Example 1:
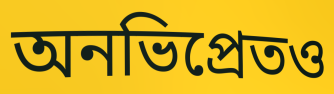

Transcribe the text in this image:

অনভিপ্রেতও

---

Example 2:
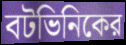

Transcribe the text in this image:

বটভিনিকের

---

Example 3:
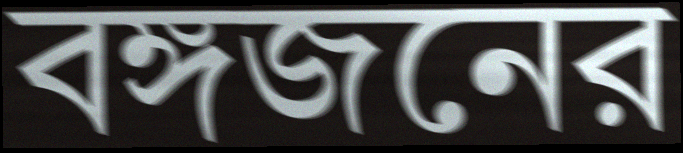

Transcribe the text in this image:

বঙ্গজনের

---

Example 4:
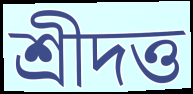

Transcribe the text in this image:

শ্রীদত্ত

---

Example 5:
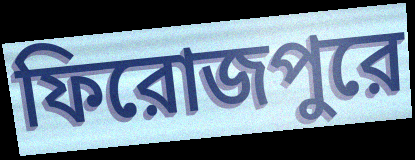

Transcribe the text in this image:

ফিরোজপুরে